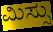
ಮಿಸ್ಸು